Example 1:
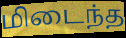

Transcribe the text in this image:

மிடைந்த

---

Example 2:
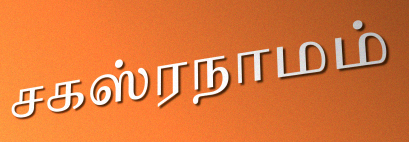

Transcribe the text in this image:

சகஸ்ரநாமம்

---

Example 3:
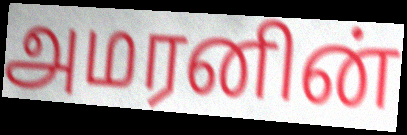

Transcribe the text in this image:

அமரனின்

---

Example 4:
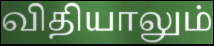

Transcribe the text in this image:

விதியாலும்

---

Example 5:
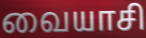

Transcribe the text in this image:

வையாசி